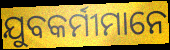
ଯୁବକର୍ମୀମାନେ